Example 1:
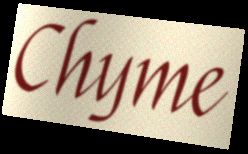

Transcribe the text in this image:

Chyme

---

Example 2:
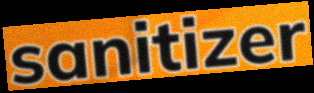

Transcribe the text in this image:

sanitizer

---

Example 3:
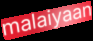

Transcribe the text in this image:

malaiyaan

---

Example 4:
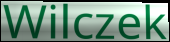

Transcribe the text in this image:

Wilczek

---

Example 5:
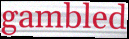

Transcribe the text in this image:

gambled